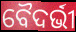
ବୈଦର୍ଭୀ